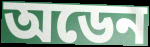
অডেন